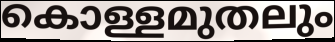
കൊള്ളമുതലും